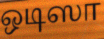
ஒடிஸா